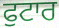
ਫੁਟਾਰ